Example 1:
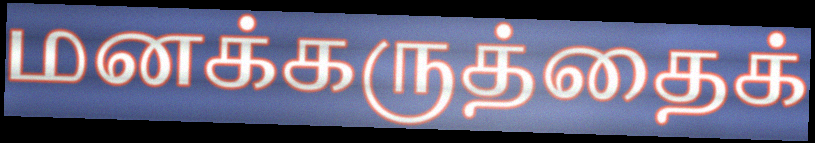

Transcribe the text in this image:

மனக்கருத்தைக்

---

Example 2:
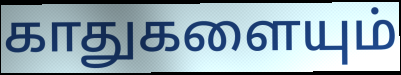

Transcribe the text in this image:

காதுகளையும்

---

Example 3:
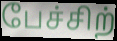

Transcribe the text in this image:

பேச்சிற்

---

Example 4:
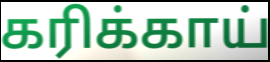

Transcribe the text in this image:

கரிக்காய்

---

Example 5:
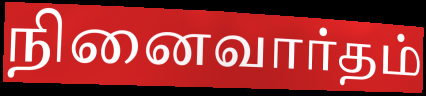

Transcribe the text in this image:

நினைவார்தம்